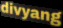
divyang